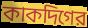
কাকদিগের